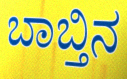
ಬಾಬ್ತಿನ